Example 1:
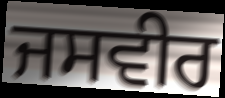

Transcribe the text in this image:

ਜਸਵੀਰ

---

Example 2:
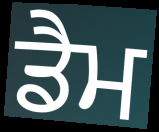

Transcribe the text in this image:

ਡੈਮ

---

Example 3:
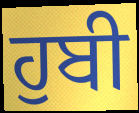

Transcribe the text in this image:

ਹੁਬੀ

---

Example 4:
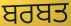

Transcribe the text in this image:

ਬਰਬਤ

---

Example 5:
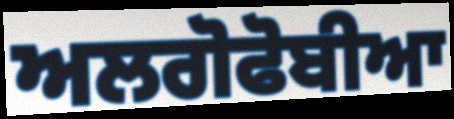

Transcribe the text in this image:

ਅਲਗੋਫੋਬੀਆ